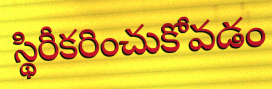
స్థిరీకరించుకోవడం